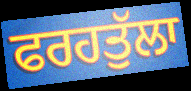
ਫਰਹਤੁੱਲਾ